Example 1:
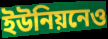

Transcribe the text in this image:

ইউনিয়নেও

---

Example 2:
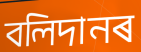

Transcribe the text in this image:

বলিদানৰ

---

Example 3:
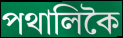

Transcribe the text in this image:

পথালিকৈ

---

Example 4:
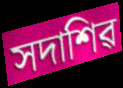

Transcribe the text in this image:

সদাশিৱ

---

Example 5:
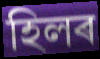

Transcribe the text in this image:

হিলৰ